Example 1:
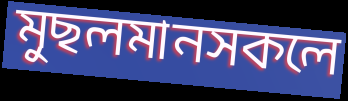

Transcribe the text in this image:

মুছলমানসকলে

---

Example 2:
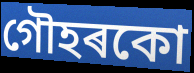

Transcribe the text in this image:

গৌহৰকো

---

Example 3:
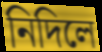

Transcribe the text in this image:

নিদিলে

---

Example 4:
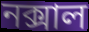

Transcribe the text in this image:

নক্সাল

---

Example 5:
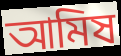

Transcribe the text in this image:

আমিষ